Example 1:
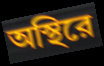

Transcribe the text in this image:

অস্থিরে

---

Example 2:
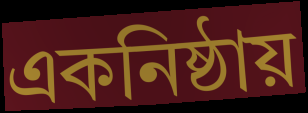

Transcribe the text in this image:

একনিষ্ঠায়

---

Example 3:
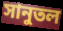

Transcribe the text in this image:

সানুতল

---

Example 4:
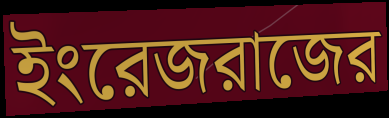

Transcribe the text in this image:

ইংরেজরাজের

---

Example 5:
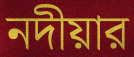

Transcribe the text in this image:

নদীয়ার